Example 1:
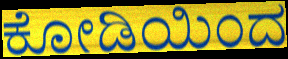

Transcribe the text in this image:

ಕೋಡಿಯಿಂದ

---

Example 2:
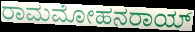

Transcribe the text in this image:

ರಾಮಮೋಹನರಾಯ್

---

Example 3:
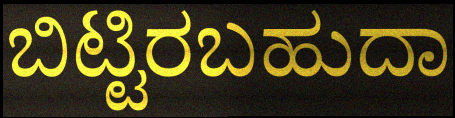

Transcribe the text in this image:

ಬಿಟ್ಟಿರಬಹುದಾ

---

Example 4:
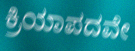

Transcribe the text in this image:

ಕ್ರಿಯಾಪದವೇ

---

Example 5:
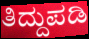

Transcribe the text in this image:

ತಿದ್ದುಪಡಿ